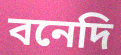
বনেদি